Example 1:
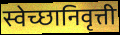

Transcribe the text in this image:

स्वेच्छानिवृत्ती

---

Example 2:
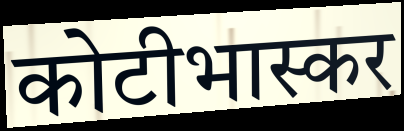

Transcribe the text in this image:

कोटीभास्कर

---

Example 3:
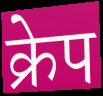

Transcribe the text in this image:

क्रेप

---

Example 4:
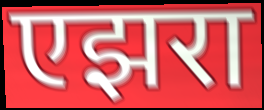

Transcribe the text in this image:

एझरा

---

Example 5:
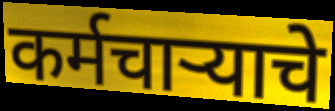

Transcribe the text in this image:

कर्मचाऱ्याचे